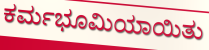
ಕರ್ಮಭೂಮಿಯಾಯಿತು